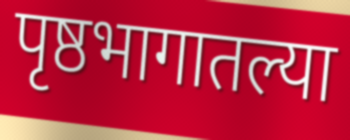
पृष्ठभागातल्या